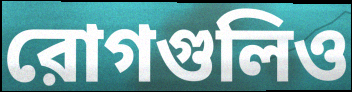
রোগগুলিও